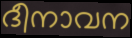
ദീനാവന